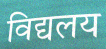
विद्यलय